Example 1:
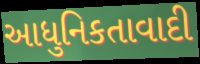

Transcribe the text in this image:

આધુનિકતાવાદી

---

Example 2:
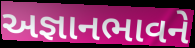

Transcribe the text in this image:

અજ્ઞાનભાવને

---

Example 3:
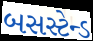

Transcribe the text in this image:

બસસ્ટેન્ડ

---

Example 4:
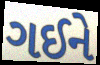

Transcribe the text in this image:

ગઈને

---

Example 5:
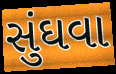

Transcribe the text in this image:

સુંઘવા